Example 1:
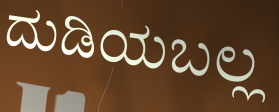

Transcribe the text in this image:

ದುಡಿಯಬಲ್ಲ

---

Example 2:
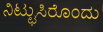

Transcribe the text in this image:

ನಿಟ್ಟುಸಿರೊಂದು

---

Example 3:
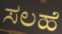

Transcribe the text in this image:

ಸಲಹೆ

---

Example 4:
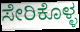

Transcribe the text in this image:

ಸೇರಿಕೊಳ್ಳ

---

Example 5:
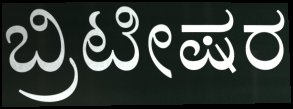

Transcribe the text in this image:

ಬ್ರಿಟೀಷರ